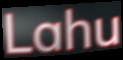
Lahu